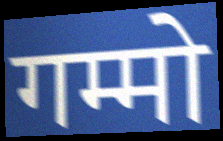
गम्मो